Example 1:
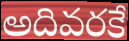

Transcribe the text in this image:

అదివరకే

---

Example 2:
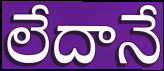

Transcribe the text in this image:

లేదానే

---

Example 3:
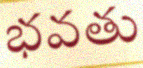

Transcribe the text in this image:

భవతు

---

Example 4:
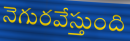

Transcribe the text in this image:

నెగురవేస్తుంది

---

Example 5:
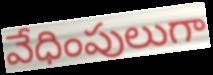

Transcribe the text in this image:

వేధింపులుగా